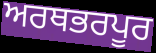
ਅਰਥਭਰਪੂਰ